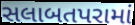
સલાબતપરામાં